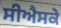
ਸੀਐਸਕੇ